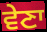
ਵੇਣਾ